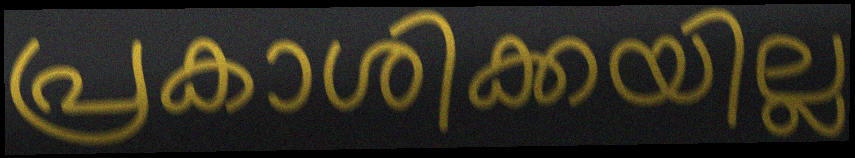
പ്രകാശിക്കയില്ല